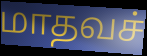
மாதவச்